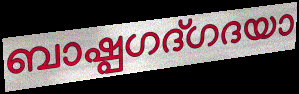
ബാഷ്പഗദ്ഗദയാ